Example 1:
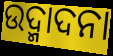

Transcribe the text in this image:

ଉଦ୍ମାଦନା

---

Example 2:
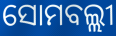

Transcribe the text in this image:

ସୋମବଲ୍ଲୀ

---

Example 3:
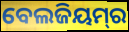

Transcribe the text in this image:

ବେଲଜିୟମ୍‌ର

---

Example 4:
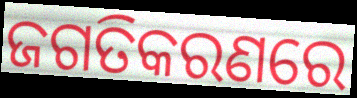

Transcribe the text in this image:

ଜଗତିକରଣରେ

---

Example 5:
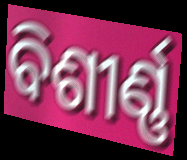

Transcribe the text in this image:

ବିଶୀର୍ଣ୍ଣ